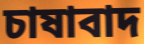
চাষাবাদ